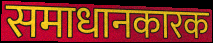
समाधानकारक